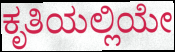
ಕೃತಿಯಲ್ಲಿಯೇ